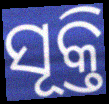
ସୂକ୍ତି